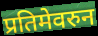
प्रतिमेवरुन